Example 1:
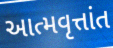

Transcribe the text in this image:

આત્મવૃત્તાંત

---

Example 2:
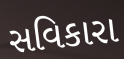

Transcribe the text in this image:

સવિકારા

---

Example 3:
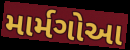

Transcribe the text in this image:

માર્મગોઆ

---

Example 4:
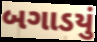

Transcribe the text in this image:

બગાડયું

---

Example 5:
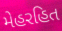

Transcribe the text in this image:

મેહરહિત